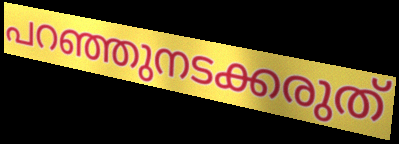
പറഞ്ഞുനടക്കരുത്